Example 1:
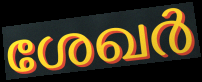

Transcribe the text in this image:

ശേഖർ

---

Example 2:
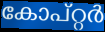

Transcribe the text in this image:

കോപ്റ്റർ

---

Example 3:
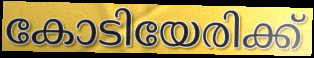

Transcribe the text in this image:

കോടിയേരിക്ക്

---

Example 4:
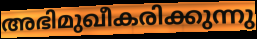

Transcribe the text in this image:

അഭിമുഖീകരിക്കുന്നു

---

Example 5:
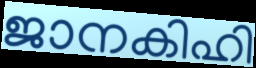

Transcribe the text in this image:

ജാനകിഹി